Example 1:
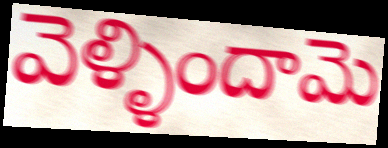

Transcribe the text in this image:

వెళ్ళిందామె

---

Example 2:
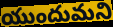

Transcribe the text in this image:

యుందుమని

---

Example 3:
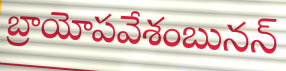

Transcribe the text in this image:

బ్రాయోపవేశంబునన్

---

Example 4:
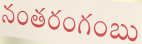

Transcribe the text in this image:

నంతరంగంబు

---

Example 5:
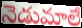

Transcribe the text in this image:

నెడుమాలే